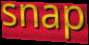
snap